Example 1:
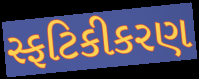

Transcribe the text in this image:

સ્ફટિકીકરણ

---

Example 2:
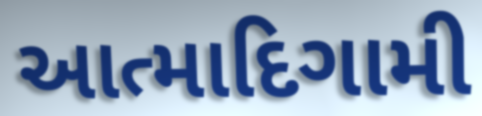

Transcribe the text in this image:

આત્માદિગામી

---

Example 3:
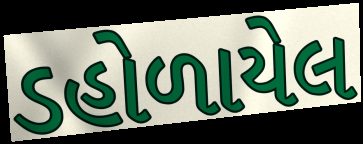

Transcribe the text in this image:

ડહોળાયેલ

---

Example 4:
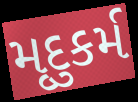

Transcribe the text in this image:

મૃદુકર્મ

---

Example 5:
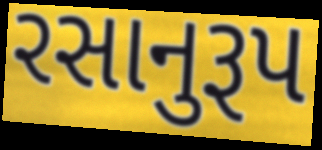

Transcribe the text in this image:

રસાનુરૂપ